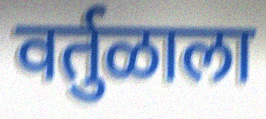
वर्तुळाला